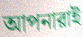
আপনারাই